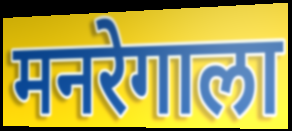
मनरेगाला